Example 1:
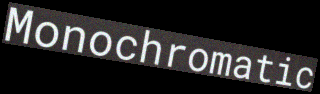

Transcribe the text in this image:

Monochromatic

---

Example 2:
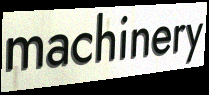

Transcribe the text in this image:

machinery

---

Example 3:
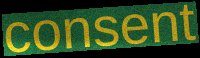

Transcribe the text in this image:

consent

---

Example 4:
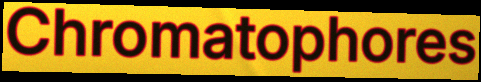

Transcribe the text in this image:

Chromatophores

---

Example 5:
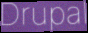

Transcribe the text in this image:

Drupal